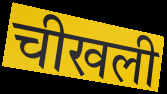
चीखली